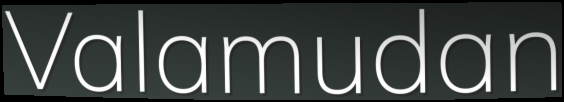
Valamudan